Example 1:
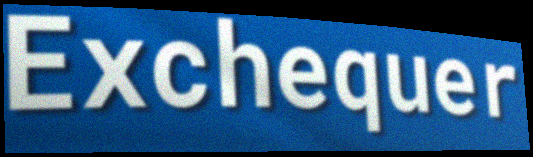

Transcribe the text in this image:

Exchequer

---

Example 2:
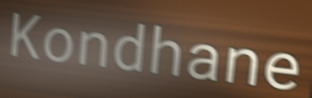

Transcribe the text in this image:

Kondhane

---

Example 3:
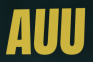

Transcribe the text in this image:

AUU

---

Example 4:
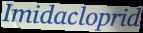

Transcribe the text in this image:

Imidacloprid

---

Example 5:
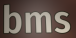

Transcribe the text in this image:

bms